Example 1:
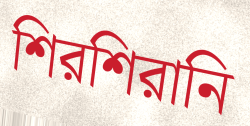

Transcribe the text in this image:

শিরশিরানি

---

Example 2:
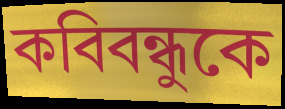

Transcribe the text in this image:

কবিবন্ধুকে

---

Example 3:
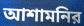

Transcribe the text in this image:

আশামনির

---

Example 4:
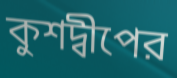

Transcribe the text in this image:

কুশদ্বীপের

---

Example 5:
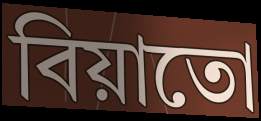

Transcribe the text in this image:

বিয়াতো